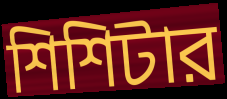
শিশিটার